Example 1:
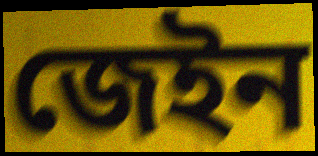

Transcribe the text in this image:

জেইন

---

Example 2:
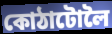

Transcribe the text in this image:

কোঠাটোলৈ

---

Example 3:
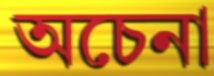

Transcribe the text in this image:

অচেনা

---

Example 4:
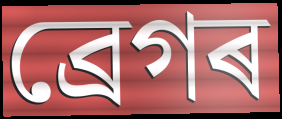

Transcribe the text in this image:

ব্ৰেগৰ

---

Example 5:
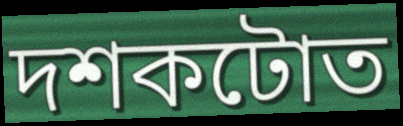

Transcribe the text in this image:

দশকটোত